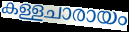
കള്ളചാരായം